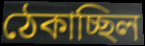
ঠেকাচ্ছিল